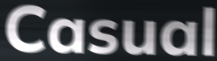
Casual